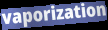
vaporization